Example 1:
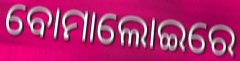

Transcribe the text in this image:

ବୋମାଲୋଇରେ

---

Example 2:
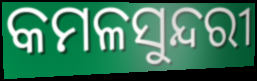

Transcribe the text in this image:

କମଳସୁନ୍ଦରୀ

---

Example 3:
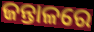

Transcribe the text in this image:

ଜନ୍ତାଳରେ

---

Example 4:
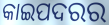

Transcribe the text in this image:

କାଇପଦରର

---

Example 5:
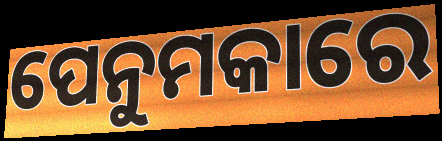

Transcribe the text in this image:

ପେନୁମକାରେ